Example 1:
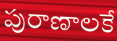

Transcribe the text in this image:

పురాణాలకే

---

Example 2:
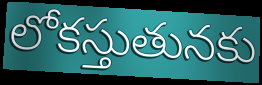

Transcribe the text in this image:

లోకస్తుతునకు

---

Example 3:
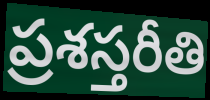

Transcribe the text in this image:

ప్రశస్తరీతి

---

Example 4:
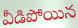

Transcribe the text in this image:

వీడిపోయిన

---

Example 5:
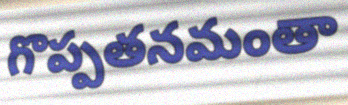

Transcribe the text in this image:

గొప్పతనమంతా